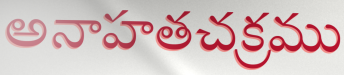
అనాహతచక్రము